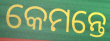
କେମନ୍ତେ